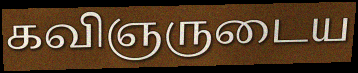
கவிஞருடைய